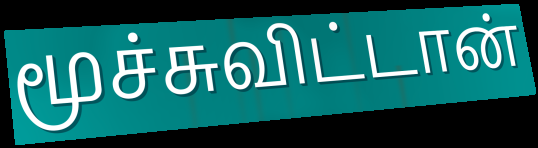
மூச்சுவிட்டான்